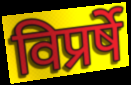
विप्रर्षे